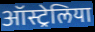
ऑस्ट्रेलिया